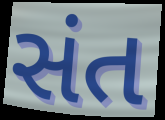
સંત